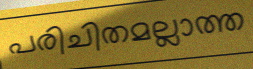
പരിചിതമല്ലാത്ത